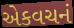
એકવચનં